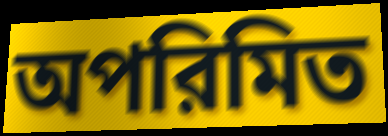
অপরিমিত